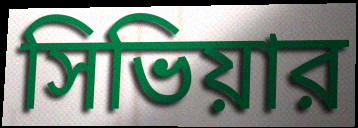
সিভিয়ার